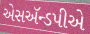
એસઍન્ડપીએ